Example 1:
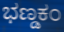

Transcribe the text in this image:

ಭಣ್ಡಕಂ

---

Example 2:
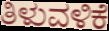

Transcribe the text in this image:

ತಿಳುವಳಿಕೆ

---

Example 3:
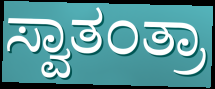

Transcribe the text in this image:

ಸ್ವಾತಂತ್ರಾ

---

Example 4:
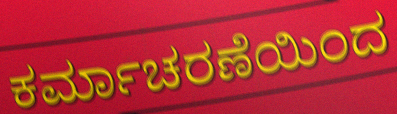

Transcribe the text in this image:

ಕರ್ಮಾಚರಣೆಯಿಂದ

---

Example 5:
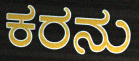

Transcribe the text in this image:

ಕರನು